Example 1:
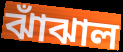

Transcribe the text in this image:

ঝাঁঝাল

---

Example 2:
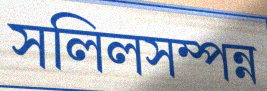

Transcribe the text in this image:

সলিলসম্পন্ন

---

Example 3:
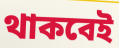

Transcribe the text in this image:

থাকবেই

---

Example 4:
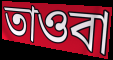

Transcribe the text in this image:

তাওবা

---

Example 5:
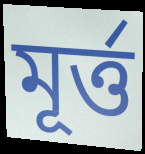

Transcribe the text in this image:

মূর্ত্ত